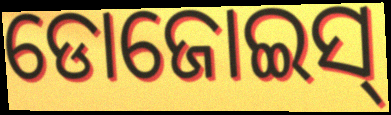
ଡୋଜୋଇସ୍